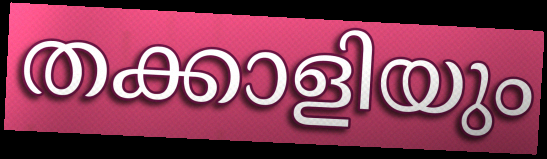
തക്കാളിയും